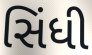
સિંધી